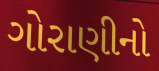
ગોરાણીનો